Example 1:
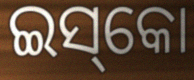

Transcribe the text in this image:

ଇସ୍‌କୋ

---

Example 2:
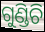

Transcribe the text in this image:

ଗୁଣ୍ଡିଚି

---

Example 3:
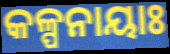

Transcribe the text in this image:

କଳ୍ପନାୟାଃ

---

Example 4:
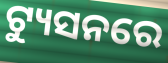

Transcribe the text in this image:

ଟ୍ୟୁସନରେ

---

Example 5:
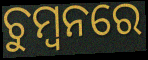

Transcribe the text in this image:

ଚୁମ୍ବନରେ